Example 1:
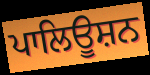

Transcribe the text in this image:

ਪਾਲਿਊਸ਼ਨ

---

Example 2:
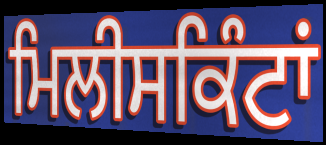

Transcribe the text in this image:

ਮਿਲੀਸਕਿੰਟਾਂ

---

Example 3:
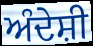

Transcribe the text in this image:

ਅੰਦੇਸ਼ੀ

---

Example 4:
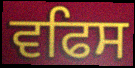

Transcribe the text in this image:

ਵਫਿਸ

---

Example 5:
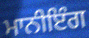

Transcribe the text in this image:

ਮਾਨੀਇੰਗ